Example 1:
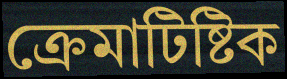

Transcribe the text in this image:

ক্রেমাটিষ্টিক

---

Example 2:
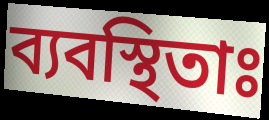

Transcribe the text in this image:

ব্যবস্থিতাঃ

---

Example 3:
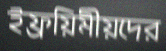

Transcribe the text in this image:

ইফ্রয়িমীয়দের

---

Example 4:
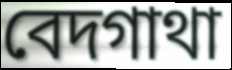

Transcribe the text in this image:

বেদগাথা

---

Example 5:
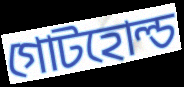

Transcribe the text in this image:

গোটহোল্ড